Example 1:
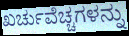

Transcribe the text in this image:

ಖರ್ಚುವೆಚ್ಚಗಳನ್ನು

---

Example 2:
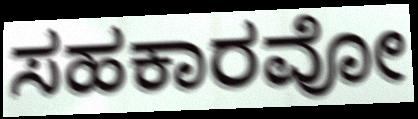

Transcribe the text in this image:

ಸಹಕಾರವೋ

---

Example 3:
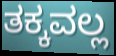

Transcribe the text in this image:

ತಕ್ಕವಲ್ಲ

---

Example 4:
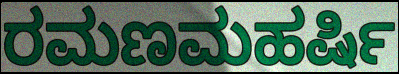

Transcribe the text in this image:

ರಮಣಮಹರ್ಷಿ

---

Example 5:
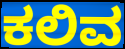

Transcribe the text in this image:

ಕಲಿವ